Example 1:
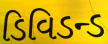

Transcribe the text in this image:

ડિવિડન્ડ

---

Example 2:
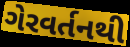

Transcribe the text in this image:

ગેરવર્તનથી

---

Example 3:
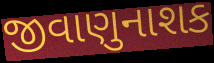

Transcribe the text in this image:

જીવાણુનાશક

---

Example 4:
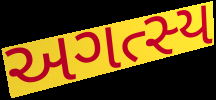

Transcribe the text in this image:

અગત્સ્ય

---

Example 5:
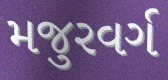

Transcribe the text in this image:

મજુરવર્ગ